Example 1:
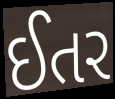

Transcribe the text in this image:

ઈતર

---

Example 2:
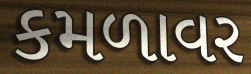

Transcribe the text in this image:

કમળાવર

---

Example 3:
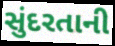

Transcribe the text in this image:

સુંદરતાની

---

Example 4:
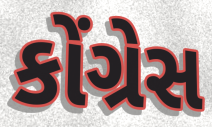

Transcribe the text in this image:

કોંગ્રેસ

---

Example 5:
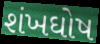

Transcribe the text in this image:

શંખઘોષ